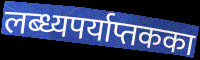
लब्ध्यपर्याप्तकका